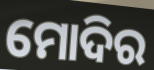
ମୋଦିର